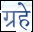
ग्रहे